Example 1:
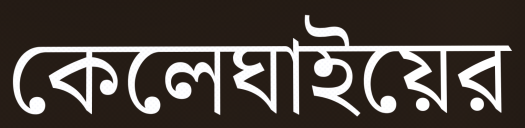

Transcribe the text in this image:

কেলেঘাইয়ের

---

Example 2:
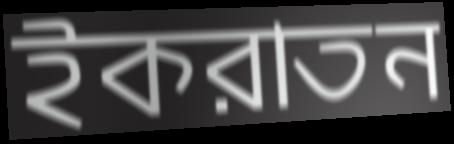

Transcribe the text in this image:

ইকরাতন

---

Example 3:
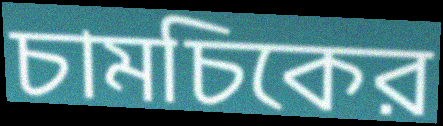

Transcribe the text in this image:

চামচিকের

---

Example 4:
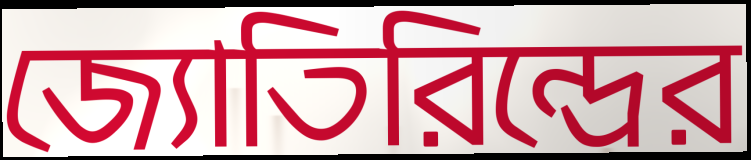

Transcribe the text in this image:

জ্যোতিরিন্দ্রের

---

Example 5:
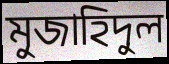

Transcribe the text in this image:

মুজাহিদুল